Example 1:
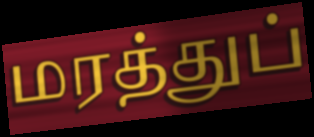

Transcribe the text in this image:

மரத்துப்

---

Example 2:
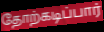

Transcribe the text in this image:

தோற்கடிப்பார்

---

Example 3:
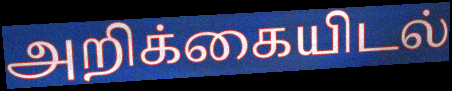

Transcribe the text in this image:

அறிக்கையிடல்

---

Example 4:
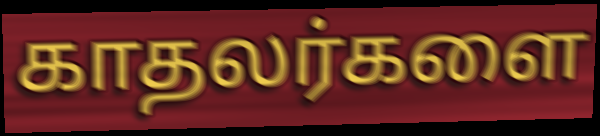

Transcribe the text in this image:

காதலர்களை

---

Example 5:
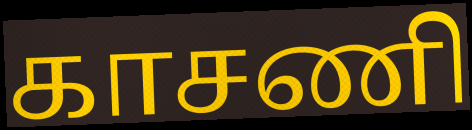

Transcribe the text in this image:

காசணி